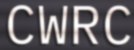
CWRC